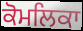
ਕੋਮਲਿਕਾ